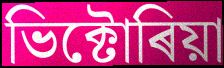
ভিক্টোৰিয়া